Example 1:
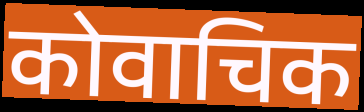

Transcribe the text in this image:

कोवाचिक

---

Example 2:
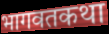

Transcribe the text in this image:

भागवतकथा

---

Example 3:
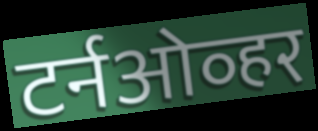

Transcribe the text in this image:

टर्नओव्हर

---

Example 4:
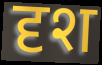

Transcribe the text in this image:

दृश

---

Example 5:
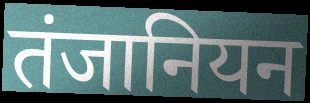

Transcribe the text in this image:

तंजानियन